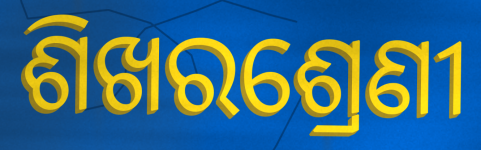
ଶିଖରଶ୍ରେଣୀ